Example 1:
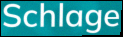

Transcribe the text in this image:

Schlage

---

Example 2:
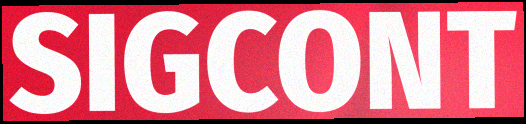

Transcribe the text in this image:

SIGCONT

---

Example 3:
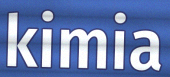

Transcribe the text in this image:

kimia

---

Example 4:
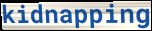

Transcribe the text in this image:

kidnapping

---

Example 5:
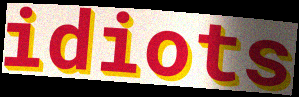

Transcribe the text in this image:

idiots